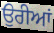
ਉਰੀਆਂ